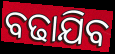
ବଢାଯିବ